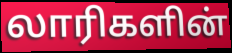
லாரிகளின்